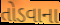
તોડવાના